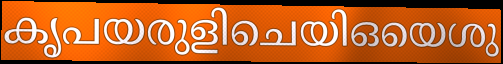
കൃപയരുളിചെയിഒയെശു